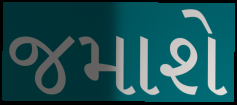
જમાશે